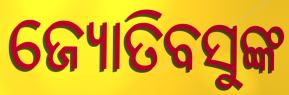
ଜ୍ୟୋତିବସୁଙ୍କ